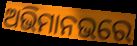
ଅଭିମାନଭରେ